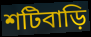
শটিবাড়ি